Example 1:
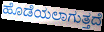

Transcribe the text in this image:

ಹೊಡೆಯಲಾಗುತ್ತದೆ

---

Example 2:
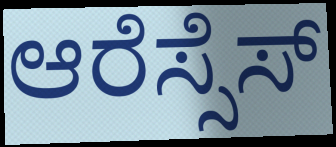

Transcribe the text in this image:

ಆರೆಸ್ಸೆಸ್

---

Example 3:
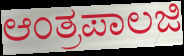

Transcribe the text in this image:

ಆಂತ್ರಪಾಲಜಿ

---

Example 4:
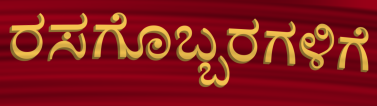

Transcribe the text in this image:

ರಸಗೊಬ್ಬರಗಳಿಗೆ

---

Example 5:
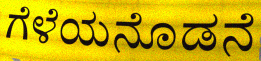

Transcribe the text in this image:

ಗೆಳೆಯನೊಡನೆ